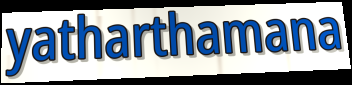
yatharthamana